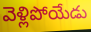
వెళ్లిపోయేడు